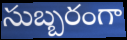
సుబ్బరంగా